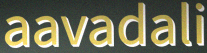
aavadali